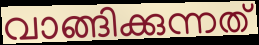
വാങ്ങിക്കുന്നത്